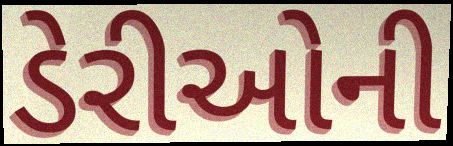
ડેરીઓની